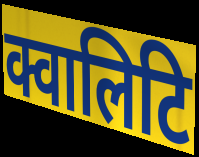
क्वालिटि